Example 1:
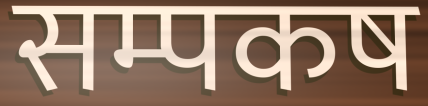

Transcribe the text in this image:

सम्पकष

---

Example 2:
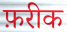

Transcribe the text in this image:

फ़रीक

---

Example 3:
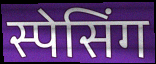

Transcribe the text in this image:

स्पेसिंग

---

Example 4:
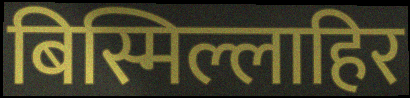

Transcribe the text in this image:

बिस्मिल्लाहिर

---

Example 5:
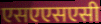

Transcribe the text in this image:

एसएएसएसी